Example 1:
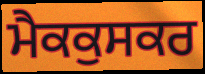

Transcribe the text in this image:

ਮੈਕਕੁਸਕਰ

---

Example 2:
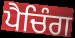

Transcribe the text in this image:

ਪੈਚਿੰਗ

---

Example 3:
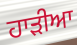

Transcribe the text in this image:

ਹਾੜੀਆ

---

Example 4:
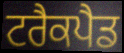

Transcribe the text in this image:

ਟਰੈਕਪੈਡ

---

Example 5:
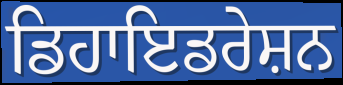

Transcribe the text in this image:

ਡਿਹਾਇਡਰੇਸ਼ਨ